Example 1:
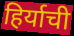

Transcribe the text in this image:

हिर्याची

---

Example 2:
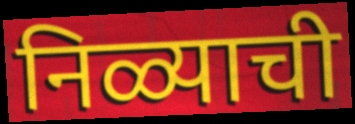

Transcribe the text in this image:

निळ्याची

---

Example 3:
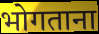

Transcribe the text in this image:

भोगताना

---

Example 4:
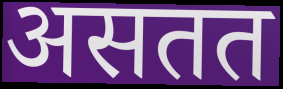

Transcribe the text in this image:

असतत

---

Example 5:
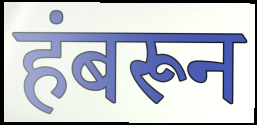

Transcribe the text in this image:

हंबरून